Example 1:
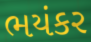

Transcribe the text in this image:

ભયંકર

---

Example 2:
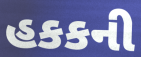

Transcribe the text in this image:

હકકની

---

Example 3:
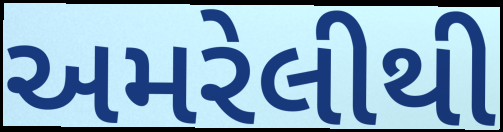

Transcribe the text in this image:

અમરેલીથી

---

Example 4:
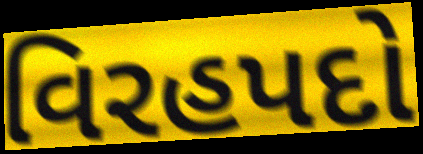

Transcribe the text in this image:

વિરહપદો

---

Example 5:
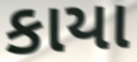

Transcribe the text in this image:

કાયા